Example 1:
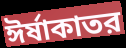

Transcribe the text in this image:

ঈর্ষাকাতর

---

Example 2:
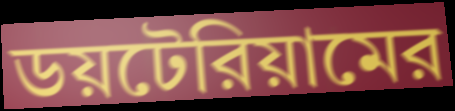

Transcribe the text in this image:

ডয়টেরিয়ামের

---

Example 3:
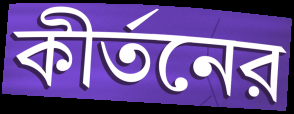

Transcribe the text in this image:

কীর্তনের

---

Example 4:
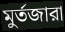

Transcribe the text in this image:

মুর্তজারা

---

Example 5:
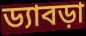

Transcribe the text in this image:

ড্যাবড়া